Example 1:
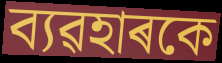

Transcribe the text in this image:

ব্যৱহাৰকে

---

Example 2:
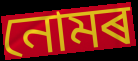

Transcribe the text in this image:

নোমৰ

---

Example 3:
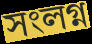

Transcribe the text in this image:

সংলগ্ন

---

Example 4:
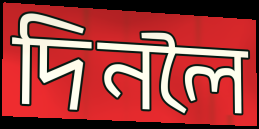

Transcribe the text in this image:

দিনলৈ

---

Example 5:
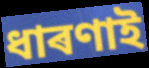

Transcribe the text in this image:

ধাৰণাই